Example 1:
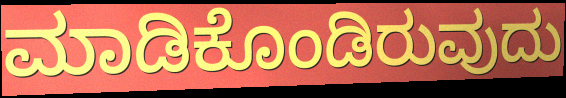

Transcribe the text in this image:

ಮಾಡಿಕೊಂಡಿರುವುದು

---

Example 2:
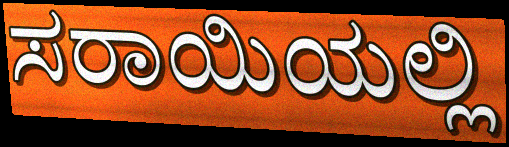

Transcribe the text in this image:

ಸರಾಯಿಯಲ್ಲಿ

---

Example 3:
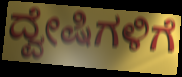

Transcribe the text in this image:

ದ್ವೇಷಿಗಳಿಗೆ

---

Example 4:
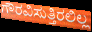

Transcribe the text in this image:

ಗೌರವಿಸುತ್ತಿರಲಿಲ್ಲ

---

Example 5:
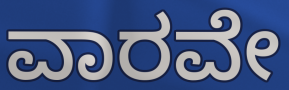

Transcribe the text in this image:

ವಾರವೇ